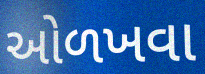
ઓળખવા